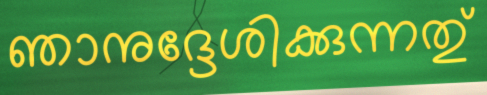
ഞാനുദ്ദേശിക്കുന്നതു്